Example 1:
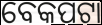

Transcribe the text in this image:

ବେକପଟା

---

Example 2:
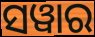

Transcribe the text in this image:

ସୱାର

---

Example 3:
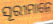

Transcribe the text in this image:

ସୂରୀମାନେ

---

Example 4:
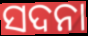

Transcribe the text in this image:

ସଦନା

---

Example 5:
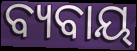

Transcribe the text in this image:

ବ୍ୟବାୟ